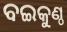
ବଇକୁଣ୍ଠ